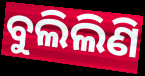
ବୁଲିଲିଣି